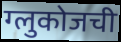
ग्लुकोजची